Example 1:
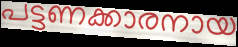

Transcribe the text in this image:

പട്ടണക്കാരനായ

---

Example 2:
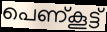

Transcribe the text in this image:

പെണ്കൂട്ട്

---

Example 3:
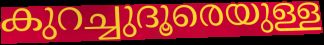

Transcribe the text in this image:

കുറച്ചുദൂരെയുള്ള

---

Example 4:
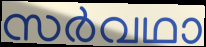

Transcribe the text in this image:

സർവഥാ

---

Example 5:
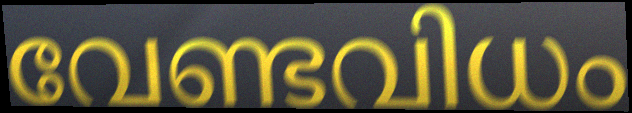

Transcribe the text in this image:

വേണ്ടവിധം